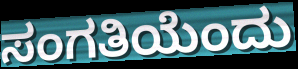
ಸಂಗತಿಯೆಂದು